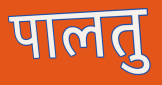
पालतु